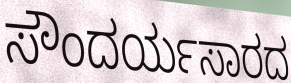
ಸೌಂದರ್ಯಸಾರದ